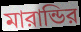
মারান্ডির